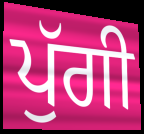
ਪੁੱਗੀ